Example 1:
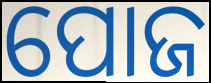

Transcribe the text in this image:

ପୋଜ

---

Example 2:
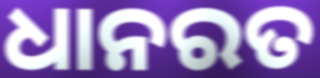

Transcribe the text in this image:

ଧାନରତ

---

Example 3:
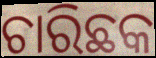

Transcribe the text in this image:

ଚାରିଛକ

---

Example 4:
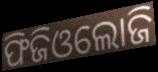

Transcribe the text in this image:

ଫିଜିଓଲୋଜି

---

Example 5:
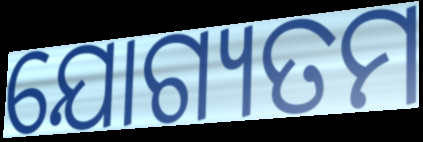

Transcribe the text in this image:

ଯୋଗ୍ୟତମ